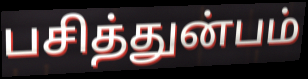
பசித்துன்பம்